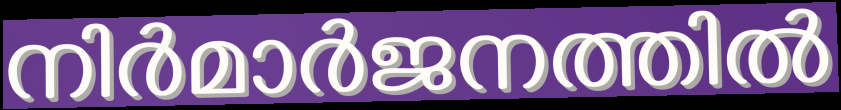
നിർമാർജനത്തിൽ